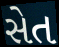
સેત